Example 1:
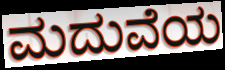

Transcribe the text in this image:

ಮದುವೆಯ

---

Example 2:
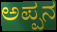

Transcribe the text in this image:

ಅಪ್ಪನ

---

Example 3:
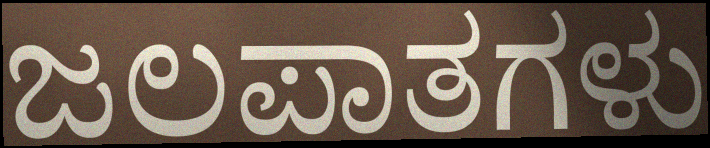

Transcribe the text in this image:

ಜಲಪಾತಗಳು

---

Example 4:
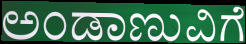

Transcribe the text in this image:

ಅಂಡಾಣುವಿಗೆ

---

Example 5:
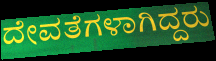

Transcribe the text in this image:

ದೇವತೆಗಳಾಗಿದ್ದರು